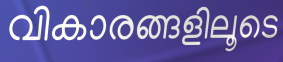
വികാരങ്ങളിലൂടെ